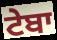
ਟੇਬਾ